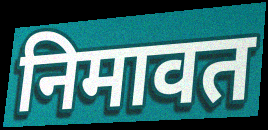
निमावत